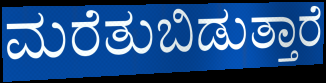
ಮರೆತುಬಿಡುತ್ತಾರೆ